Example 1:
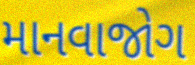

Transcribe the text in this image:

માનવાજોગ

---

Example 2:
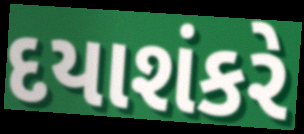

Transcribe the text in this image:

દયાશંકરે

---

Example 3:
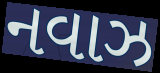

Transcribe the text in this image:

નવાઝ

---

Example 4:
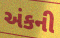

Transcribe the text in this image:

અંકની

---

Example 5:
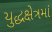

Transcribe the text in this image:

યુદ્ધક્ષેત્રમાં